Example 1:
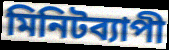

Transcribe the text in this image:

মিনিটব্যাপী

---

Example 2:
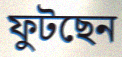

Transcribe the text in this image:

ফুটছেন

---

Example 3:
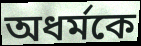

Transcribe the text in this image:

অধর্মকে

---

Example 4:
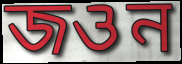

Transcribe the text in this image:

জওন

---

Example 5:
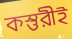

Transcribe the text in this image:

কস্তুরীই